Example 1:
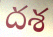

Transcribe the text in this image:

దశ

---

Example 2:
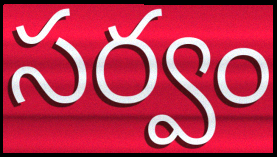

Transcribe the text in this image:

సర్వం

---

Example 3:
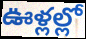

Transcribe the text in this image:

ఊళ్లల్లో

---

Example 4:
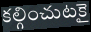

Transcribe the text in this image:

కల్గించుటకై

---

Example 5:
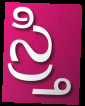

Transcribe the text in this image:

స్ర్తి